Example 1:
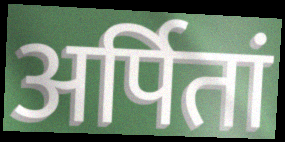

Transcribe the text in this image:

अर्पितां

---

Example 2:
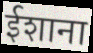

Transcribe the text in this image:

ईशाना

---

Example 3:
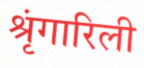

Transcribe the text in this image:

श्रृंगारिली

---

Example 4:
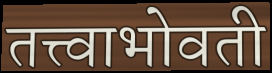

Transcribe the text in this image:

तत्त्वाभोवती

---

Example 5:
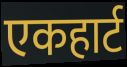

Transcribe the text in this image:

एकहार्ट